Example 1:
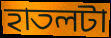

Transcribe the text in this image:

হাতলটা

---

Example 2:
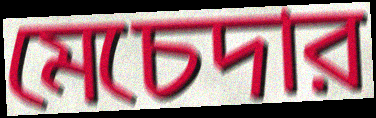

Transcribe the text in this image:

মেচেদার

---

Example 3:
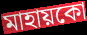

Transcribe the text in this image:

মাহায়কো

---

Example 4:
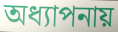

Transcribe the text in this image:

অধ্যাপনায়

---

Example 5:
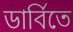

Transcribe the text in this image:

ডার্বিতে